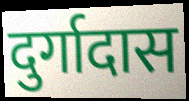
दुर्गादास